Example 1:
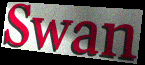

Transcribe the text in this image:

Swan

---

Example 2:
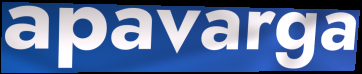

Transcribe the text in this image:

apavarga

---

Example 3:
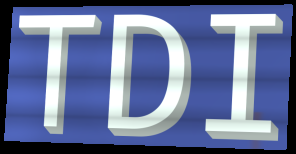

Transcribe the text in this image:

TDI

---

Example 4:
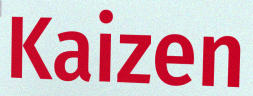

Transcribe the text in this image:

Kaizen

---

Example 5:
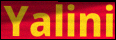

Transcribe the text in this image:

Yalini